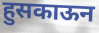
हुसकाऊन